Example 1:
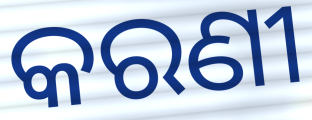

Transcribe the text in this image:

କରଣୀ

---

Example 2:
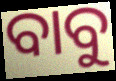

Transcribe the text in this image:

ବାବୁ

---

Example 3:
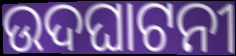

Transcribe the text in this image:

ଉଦଘାଟନୀ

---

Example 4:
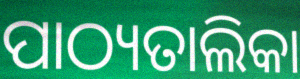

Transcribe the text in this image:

ପାଠ୍ୟତାଲିକା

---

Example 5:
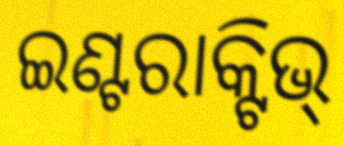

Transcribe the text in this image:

ଇଣ୍ଟରାକ୍ଟିଭ୍